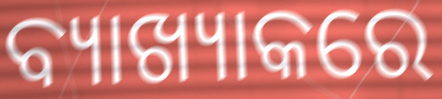
ବ୍ୟାଖ୍ୟାକରେ